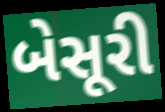
બેસૂરી